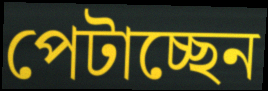
পেটাচ্ছেন